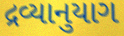
દ્રવ્યાનુયાગ